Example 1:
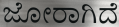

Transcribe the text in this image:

ಜೋರಾಗಿದೆ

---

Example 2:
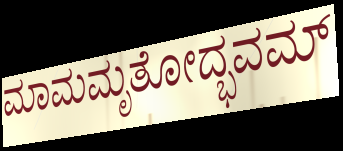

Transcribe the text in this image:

ಮಾಮಮೃತೋದ್ಭವಮ್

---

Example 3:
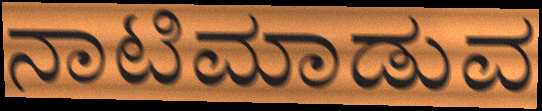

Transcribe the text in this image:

ನಾಟಿಮಾಡುವ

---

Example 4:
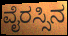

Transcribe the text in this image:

ವೈರಸ್ಸಿನ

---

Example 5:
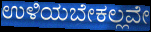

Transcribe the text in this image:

ಉಳಿಯಬೇಕಲ್ಲವೇ